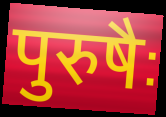
पुरुषैः